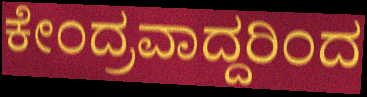
ಕೇಂದ್ರವಾದ್ದರಿಂದ